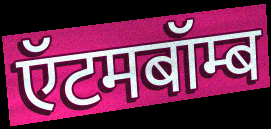
ऍटमबॉम्ब